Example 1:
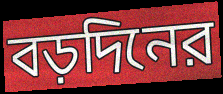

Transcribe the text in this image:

বড়দিনের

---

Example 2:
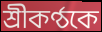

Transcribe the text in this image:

শ্রীকণ্ঠকে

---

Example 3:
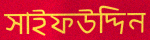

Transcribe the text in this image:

সাইফউদ্দিন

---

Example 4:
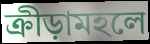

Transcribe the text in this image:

ক্রীড়ামহলে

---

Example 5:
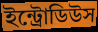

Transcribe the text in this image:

ইন্ট্রোডিউস